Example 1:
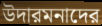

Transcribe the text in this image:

উদারমনাদের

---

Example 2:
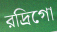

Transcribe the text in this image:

রদ্রিগো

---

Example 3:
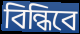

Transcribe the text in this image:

বিন্ধিবে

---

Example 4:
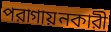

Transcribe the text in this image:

পরাগায়নকারী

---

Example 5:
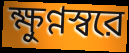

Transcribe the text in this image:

ক্ষুণ্নস্বরে